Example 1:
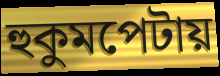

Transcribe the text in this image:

হুকুমপেটায়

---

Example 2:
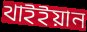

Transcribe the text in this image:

থাইইয়ান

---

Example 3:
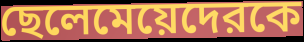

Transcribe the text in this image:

ছেলেমেয়েদেরকে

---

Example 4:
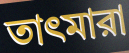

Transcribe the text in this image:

তাৎমারা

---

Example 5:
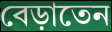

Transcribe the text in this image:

বেড়াতেন